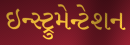
ઇન્સ્ટ્રુમેન્ટેશન